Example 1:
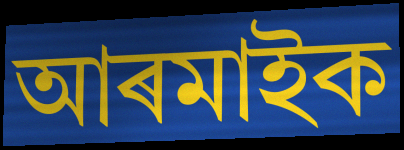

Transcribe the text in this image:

আৰমাইক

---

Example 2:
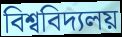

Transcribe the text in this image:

বিশ্ববিদ্যলয়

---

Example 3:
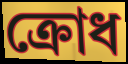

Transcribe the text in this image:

ক্ৰোধ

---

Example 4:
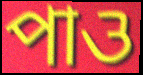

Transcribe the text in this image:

পাও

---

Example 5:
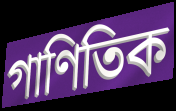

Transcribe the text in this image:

গাণিতিক